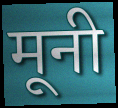
मूनी